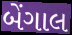
બેંગાલ